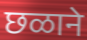
छळाने